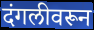
दंगलीवरून